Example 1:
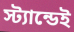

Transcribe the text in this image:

স্ট্যান্ডেই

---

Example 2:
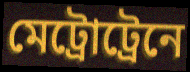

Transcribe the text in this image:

মেট্রোট্রেনে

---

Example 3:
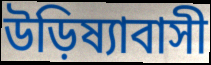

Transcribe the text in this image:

উড়িষ্যাবাসী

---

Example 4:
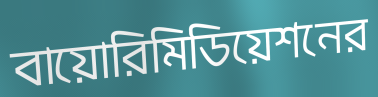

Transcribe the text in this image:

বায়োরিমিডিয়েশনের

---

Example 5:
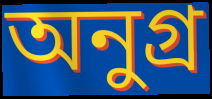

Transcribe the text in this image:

অনুগ্র